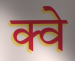
क्वे